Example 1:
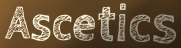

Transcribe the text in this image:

Ascetics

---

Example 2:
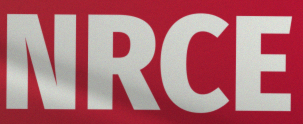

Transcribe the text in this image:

NRCE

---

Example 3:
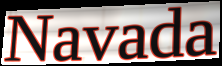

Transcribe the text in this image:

Navada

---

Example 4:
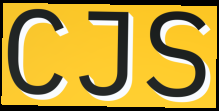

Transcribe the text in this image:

CJS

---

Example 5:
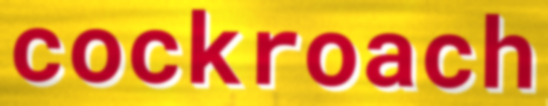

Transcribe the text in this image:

cockroach